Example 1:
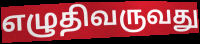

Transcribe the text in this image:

எழுதிவருவது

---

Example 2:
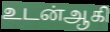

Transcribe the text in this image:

உடன்ஆகி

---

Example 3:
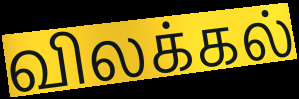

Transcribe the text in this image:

விலக்கல்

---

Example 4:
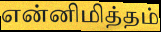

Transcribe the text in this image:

என்னிமித்தம்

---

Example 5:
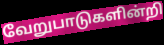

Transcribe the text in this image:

வேறுபாடுகளின்றி